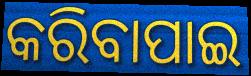
କରିବାପାଇ